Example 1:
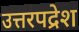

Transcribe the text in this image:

उत्तरपद्रेश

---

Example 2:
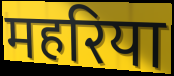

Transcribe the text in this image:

महरिया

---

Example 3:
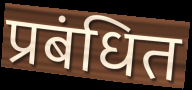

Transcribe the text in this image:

प्रबंधित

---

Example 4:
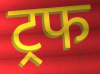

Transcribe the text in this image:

ट्रफ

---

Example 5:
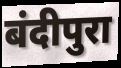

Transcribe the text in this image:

बंदीपुरा